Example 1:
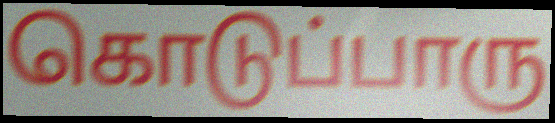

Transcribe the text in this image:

கொடுப்பாரு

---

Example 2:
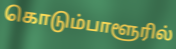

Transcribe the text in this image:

கொடும்பாளூரில்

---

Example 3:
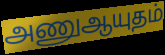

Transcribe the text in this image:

அணுஆயுதம்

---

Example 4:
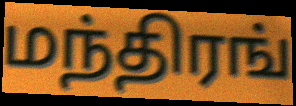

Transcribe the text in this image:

மந்திரங்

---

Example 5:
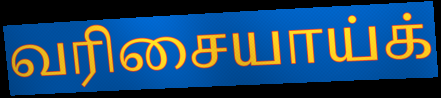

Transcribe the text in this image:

வரிசையாய்க்